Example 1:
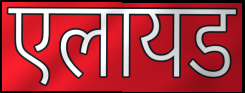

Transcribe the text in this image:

एलायड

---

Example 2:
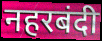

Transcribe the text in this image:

नहरबंदी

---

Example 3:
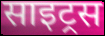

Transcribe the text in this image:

साइट्रस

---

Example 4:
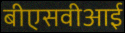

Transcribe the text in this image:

बीएसवीआई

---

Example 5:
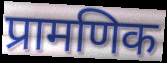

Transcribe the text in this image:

प्रामणिक